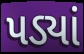
પડ્યાં